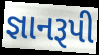
જ્ઞાનરૂપી